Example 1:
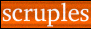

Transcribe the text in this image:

scruples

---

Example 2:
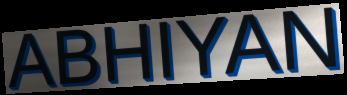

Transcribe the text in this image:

ABHIYAN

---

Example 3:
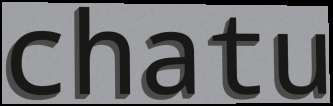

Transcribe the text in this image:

chatu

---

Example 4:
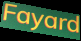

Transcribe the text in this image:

Fayard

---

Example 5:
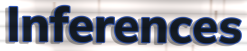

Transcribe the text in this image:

Inferences